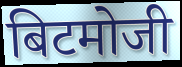
बिटमोजी